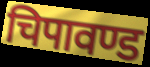
चिपावण्ड